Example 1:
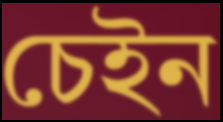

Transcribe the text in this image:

চেইন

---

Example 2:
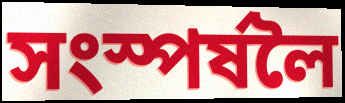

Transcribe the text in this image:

সংস্পৰ্ষলৈ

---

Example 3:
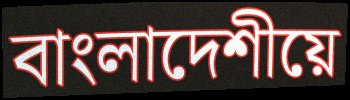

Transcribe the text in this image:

বাংলাদেশীয়ে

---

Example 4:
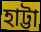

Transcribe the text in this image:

হাট্টা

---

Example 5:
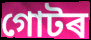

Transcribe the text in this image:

গোটৰ